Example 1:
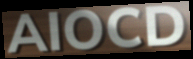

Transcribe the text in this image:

AIOCD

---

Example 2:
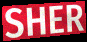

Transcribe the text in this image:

SHER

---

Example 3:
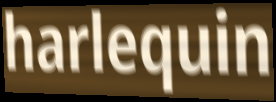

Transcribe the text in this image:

harlequin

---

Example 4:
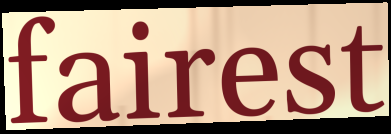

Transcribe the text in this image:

fairest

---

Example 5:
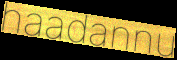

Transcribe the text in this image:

haadannu